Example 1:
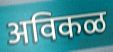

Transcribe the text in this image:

अविकळ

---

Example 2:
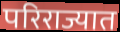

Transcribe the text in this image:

परिराज्यात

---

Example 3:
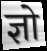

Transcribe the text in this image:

ज्ञो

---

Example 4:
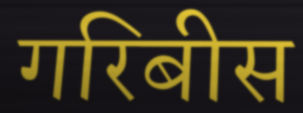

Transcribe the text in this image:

गरिबीस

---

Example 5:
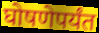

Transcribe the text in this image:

घोषणेपर्यंत